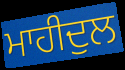
ਮਾਹੀਦੁਲ